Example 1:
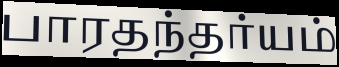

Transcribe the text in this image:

பாரதந்தர்யம்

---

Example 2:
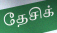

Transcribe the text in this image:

தேசிக்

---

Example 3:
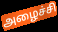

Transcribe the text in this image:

அழைச்சி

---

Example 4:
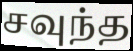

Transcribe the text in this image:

சவுந்த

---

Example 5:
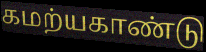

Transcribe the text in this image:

கமற்யகாண்டு